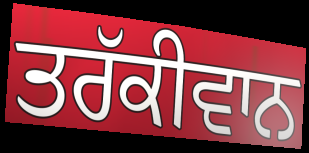
ਤਰੱਕੀਵਾਨ